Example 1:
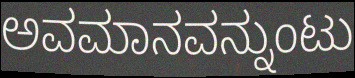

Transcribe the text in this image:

ಅವಮಾನವನ್ನುಂಟು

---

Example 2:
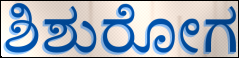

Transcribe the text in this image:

ಶಿಶುರೋಗ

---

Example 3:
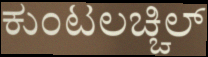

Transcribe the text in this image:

ಕುಂಟಲಚ್ಚಿಲ್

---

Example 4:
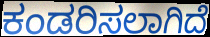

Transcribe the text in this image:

ಕಂಡರಿಸಲಾಗಿದೆ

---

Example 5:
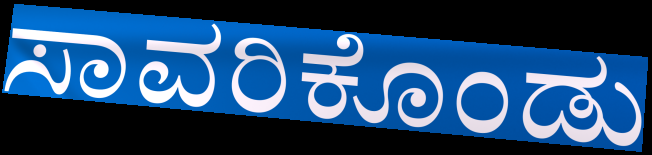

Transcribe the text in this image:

ಸಾವರಿಕೊಂಡು